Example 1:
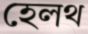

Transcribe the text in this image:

হেলথ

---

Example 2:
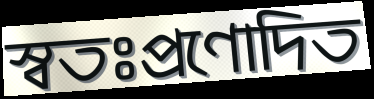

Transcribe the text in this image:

স্বতঃপ্রণোদিত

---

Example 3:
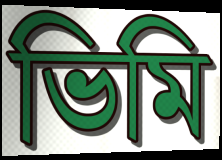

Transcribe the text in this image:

ভিমি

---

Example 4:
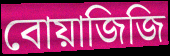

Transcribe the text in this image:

বোয়াজিজি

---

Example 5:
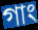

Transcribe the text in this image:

গাং